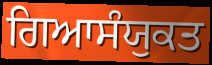
ਗਿਆਸੰਯੁਕਤ